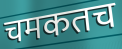
चमकतच